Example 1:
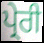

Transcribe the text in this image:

ਪ੍ਰੇਰੀ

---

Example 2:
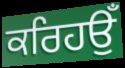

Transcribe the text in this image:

ਕਰਿਹਉਁ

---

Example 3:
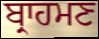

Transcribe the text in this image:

ਬ੍ਰਾਹਮਣ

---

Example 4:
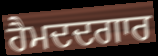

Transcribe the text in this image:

ਹੈਮਦਦਗਾਰ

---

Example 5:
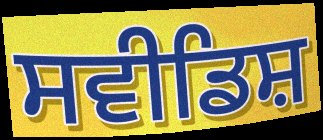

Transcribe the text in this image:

ਸਵੀਡਿਸ਼